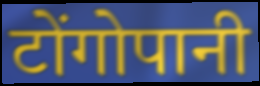
टोंगोपानी